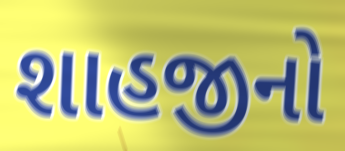
શાહજીનો